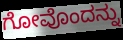
ಗೋವೊಂದನ್ನು